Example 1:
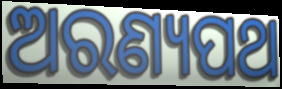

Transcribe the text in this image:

ଅରଣ୍ୟପଥ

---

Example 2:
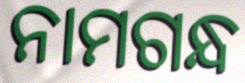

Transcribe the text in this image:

ନାମଗନ୍ଧ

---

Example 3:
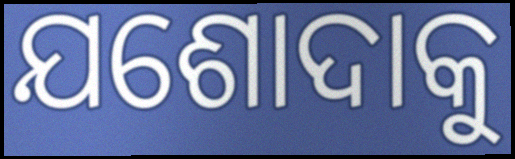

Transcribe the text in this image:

ଯଶୋଦାକୁ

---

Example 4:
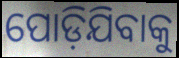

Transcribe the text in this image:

ପୋଡ଼ିଯିବାକୁ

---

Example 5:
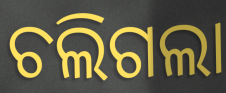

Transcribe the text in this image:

ଚଲିଗଲା